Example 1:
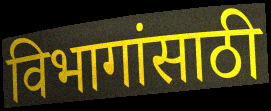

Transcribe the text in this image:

विभागांसाठी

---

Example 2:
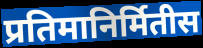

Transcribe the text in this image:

प्रतिमानिर्मितीस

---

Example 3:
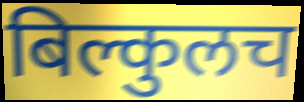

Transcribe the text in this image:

बिल्कुलच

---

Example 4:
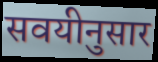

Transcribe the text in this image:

सवयीनुसार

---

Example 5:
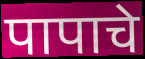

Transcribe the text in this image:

पापाचे